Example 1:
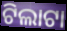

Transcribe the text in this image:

ଟିଲାଟା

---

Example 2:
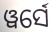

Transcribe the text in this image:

ୱର୍ସେ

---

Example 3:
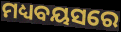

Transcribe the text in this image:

ମଧ୍ୟବୟସରେ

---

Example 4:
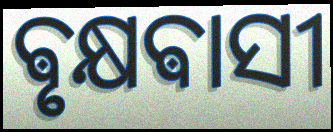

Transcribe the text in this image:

ଵୃକ୍ଷଵାସୀ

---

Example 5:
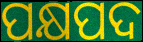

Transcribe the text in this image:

ପକ୍ଷପଦ